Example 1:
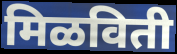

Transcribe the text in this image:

मिळविती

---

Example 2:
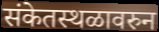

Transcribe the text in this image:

संकेतस्थळावरुन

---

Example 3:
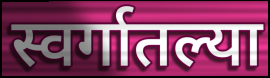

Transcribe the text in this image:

स्वर्गातल्या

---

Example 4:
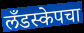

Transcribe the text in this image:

लँडस्केपचा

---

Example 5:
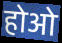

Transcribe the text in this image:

होओ